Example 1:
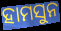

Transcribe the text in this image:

ହାମସୁନ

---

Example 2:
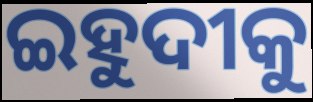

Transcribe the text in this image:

ଇହୁଦୀକୁ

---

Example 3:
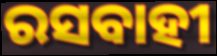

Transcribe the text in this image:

ରସବାହୀ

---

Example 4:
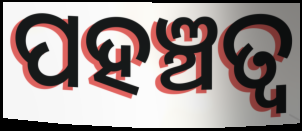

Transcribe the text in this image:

ପହଞ୍ଚତ୍ବ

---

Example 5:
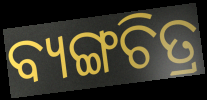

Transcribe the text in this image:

ବ୍ୟଙ୍ଗଚିତ୍ର